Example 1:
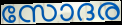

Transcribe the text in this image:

സോദര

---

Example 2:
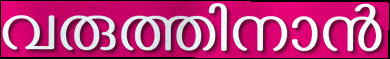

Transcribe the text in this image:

വരുത്തിനാൻ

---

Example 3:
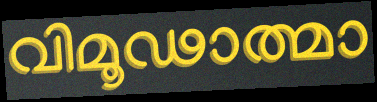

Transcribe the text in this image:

വിമൂഢാത്മാ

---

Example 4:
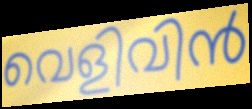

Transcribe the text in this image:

വെളിവിൻ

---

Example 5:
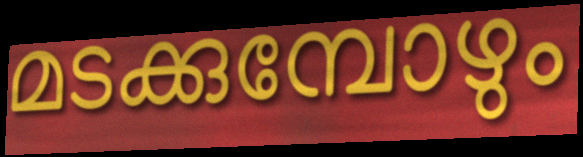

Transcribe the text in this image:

മടക്കുമ്പോഴും